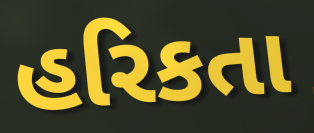
હરિકતા